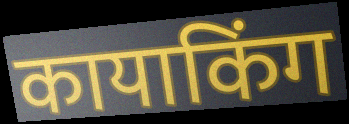
कायाकिंग